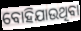
ବୋହିଯାଉଥିବା